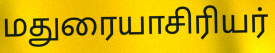
மதுரையாசிரியர்